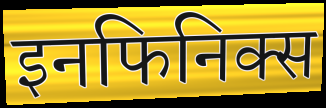
इनफिनिक्स